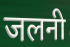
जलनी